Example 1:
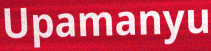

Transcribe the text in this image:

Upamanyu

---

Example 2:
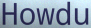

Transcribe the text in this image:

Howdu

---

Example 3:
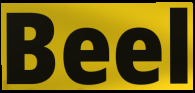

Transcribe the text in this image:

Beel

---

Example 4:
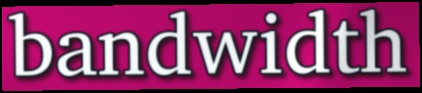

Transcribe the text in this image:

bandwidth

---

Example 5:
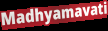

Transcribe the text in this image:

Madhyamavati